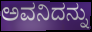
ಅವನಿದನ್ನು